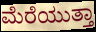
ಮೆರೆಯುತ್ತಾ